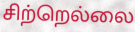
சிற்றெல்லை